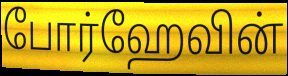
போர்ஹேவின்